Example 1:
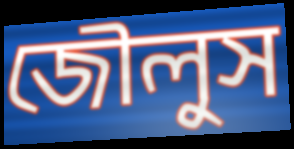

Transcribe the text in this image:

জৌলুস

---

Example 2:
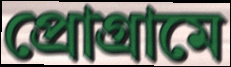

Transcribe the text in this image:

প্রোগ্রামে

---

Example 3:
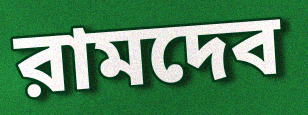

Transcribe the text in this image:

রামদেব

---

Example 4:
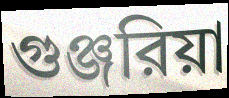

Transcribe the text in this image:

গুঞ্জরিয়া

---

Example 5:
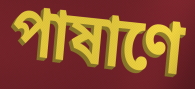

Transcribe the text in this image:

পাষাণে